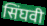
सिंघवी